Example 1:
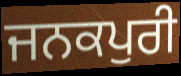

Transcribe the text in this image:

ਜਨਕਪੁਰੀ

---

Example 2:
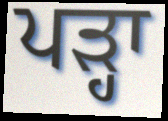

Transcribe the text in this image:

ਪੜ੍ਹਾ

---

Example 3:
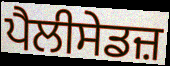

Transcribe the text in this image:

ਪੈਲੀਸੇਡਜ਼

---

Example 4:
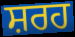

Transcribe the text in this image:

ਸ਼ਰਹ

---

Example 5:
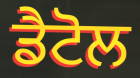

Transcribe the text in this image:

ਡੈਟੋਲ